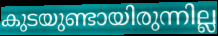
കുടയുണ്ടായിരുന്നില്ല